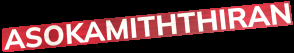
ASOKAMITHTHIRAN